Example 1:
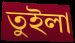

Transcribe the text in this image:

তুইলা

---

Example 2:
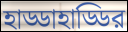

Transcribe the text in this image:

হাড্ডাহাড্ডির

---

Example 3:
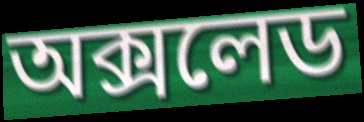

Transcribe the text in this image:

অক্সলেড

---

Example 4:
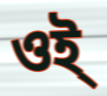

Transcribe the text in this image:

ওই্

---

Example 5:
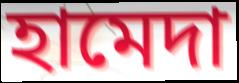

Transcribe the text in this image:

হামেদা